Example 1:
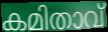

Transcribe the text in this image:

കമിതാവ്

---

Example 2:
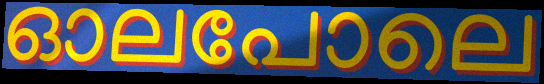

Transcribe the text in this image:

ഓലപോലെ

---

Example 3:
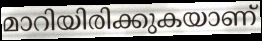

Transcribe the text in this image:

മാറിയിരിക്കുകയാണ്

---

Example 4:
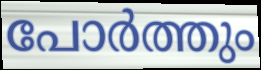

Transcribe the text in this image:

പോർത്തും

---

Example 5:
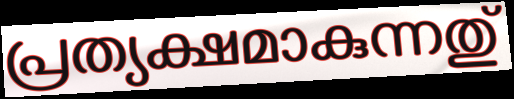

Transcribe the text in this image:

പ്രത്യക്ഷമാകുന്നതു്